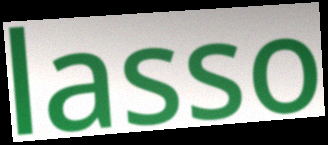
lasso